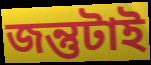
জন্তুটাই